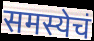
समस्येचं